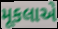
મૂકલાએ